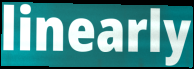
linearly